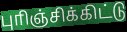
புரிஞ்சிக்கிட்டு